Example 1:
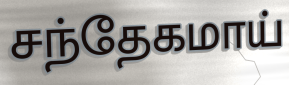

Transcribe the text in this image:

சந்தேகமாய்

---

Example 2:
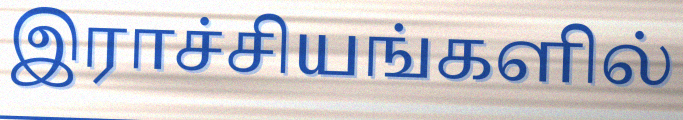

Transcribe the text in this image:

இராச்சியங்களில்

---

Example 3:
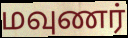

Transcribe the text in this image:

மவுணர்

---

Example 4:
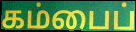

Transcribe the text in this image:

கம்பைப்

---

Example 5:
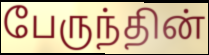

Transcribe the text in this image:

பேருந்தின்